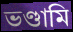
ভণ্ডামি